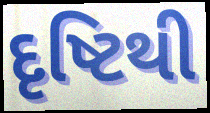
દૃષ્ટિથી